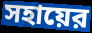
সহায়ের